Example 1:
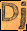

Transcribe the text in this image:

Dj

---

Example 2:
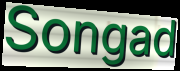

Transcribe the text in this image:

Songad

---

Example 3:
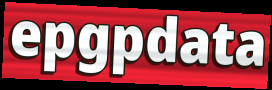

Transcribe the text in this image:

epgpdata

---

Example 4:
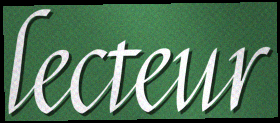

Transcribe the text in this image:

lecteur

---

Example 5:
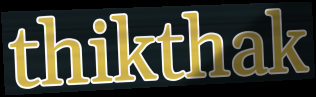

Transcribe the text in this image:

thikthak